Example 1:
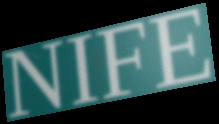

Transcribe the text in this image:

NIFE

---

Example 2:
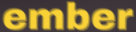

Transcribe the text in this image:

ember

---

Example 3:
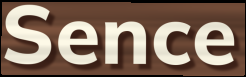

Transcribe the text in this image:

Sence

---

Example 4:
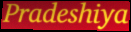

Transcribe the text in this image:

Pradeshiya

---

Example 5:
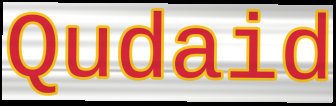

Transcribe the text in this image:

Qudaid